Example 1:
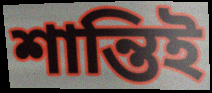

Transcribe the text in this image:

শান্তিই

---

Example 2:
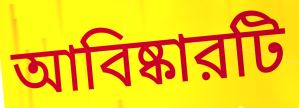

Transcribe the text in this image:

আবিষ্কারটি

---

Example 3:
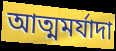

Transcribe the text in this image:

আত্মমর্যাদা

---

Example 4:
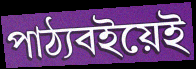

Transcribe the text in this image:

পাঠ্যবইয়েই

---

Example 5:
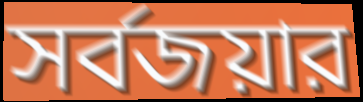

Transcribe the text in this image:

সর্বজয়ার